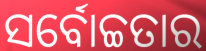
ସର୍ବୋଚ୍ଚତାର